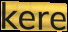
kere